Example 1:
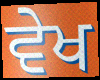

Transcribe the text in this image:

ਵੇਖ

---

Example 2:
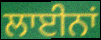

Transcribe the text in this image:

ਲਾਈਨਾਂ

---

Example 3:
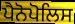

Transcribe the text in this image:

ਪੈਨੋਪੋਲਿਸ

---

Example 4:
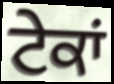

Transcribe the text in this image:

ਟੇਕਾਂ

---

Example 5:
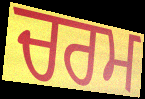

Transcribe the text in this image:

ਚਰਮ